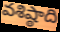
వశిష్ఠాది